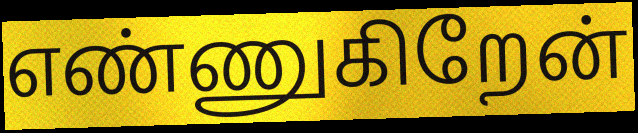
எண்ணுகிறேன்